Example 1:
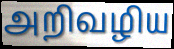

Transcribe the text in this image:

அறிவழிய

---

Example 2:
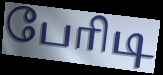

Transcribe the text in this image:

பேரிடி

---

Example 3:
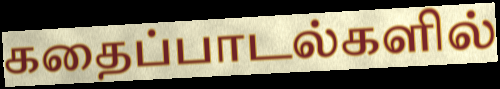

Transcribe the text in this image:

கதைப்பாடல்களில்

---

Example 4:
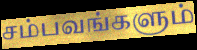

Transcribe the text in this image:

சம்பவங்களும்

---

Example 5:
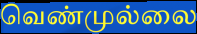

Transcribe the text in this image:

வெண்முல்லை